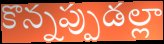
కొన్నప్పుడల్లా